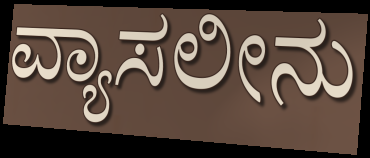
ವ್ಯಾಸಲೀನು